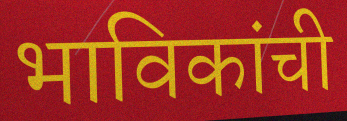
भाविकांची